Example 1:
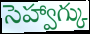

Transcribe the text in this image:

సెహ్వాగ్కు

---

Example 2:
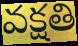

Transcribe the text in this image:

వక్షతి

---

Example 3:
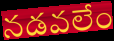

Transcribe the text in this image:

నడవలేం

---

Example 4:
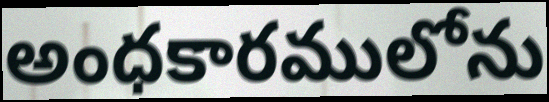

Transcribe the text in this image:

అంధకారములోను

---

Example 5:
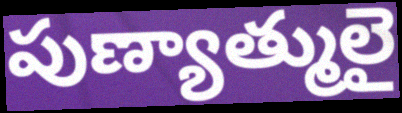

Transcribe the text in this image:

పుణ్యాత్ములై